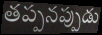
తప్పనప్పుడు